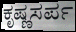
ಕೃಷ್ಣಸರ್ಪ